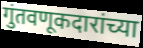
गुंतवणूकदारांच्या